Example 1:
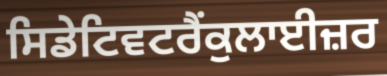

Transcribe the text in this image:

ਸਿਡੇਟਿਵਟਰੈਂਕੁਲਾਈਜ਼ਰ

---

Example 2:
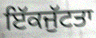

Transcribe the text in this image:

ਇੱਕਜੁੱਟਤਾ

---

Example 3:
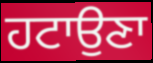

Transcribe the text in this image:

ਹਟਾਉਣਾ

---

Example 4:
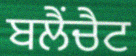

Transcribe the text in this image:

ਬਲੈਂਚੈਟ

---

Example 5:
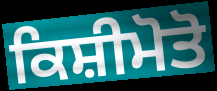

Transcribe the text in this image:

ਕਿਸ਼ੀਮੋਤੋ